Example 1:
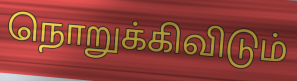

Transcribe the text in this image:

நொறுக்கிவிடும்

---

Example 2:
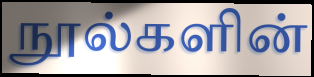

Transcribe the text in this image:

நூல்களின்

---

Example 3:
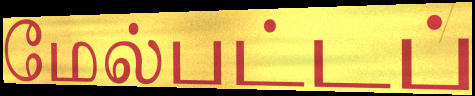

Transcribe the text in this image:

மேல்பட்டப்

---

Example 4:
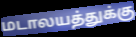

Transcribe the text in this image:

மடாலயத்துக்கு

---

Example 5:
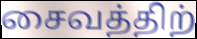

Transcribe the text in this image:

சைவத்திற்